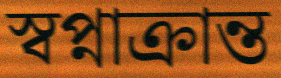
স্বপ্নাক্রান্ত